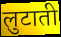
लुटाती